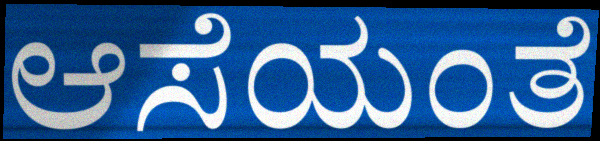
ಆಸೆಯಂತೆ